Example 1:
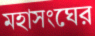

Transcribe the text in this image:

মহাসংঘের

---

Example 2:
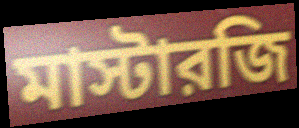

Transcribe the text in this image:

মাস্টারজি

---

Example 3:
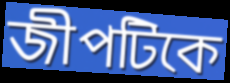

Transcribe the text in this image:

জীপটিকে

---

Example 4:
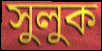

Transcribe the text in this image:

সুলুক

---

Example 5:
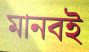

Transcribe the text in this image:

মানবই